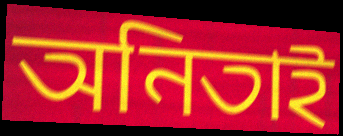
অনিতাই